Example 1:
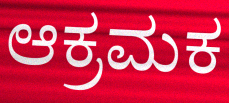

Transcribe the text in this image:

ಆಕ್ರಮಕ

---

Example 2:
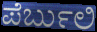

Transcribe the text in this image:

ಪೆರ್ಬುಲಿ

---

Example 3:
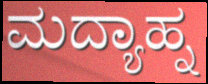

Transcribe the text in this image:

ಮದ್ಯಾಹ್ನ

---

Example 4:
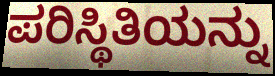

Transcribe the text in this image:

ಪರಿಸ್ಥಿತಿಯನ್ನು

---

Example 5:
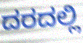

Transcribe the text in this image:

ದರದಲ್ಲಿ